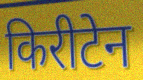
किरीटेन